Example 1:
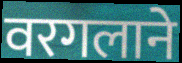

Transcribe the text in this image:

वरगलाने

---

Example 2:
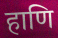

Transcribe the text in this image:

हाणि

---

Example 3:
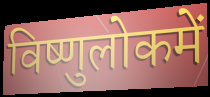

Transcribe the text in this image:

विष्णुलोकमें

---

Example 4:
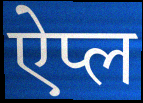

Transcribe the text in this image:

ऐप्ल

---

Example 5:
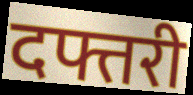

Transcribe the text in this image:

दफ्तरी